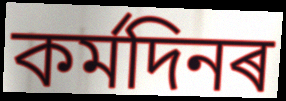
কৰ্মদিনৰ